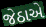
જેઠાએ